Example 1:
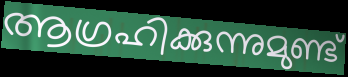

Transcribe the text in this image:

ആഗ്രഹിക്കുന്നുമുണ്ട്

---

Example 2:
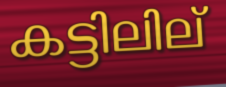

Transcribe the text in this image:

കട്ടിലില്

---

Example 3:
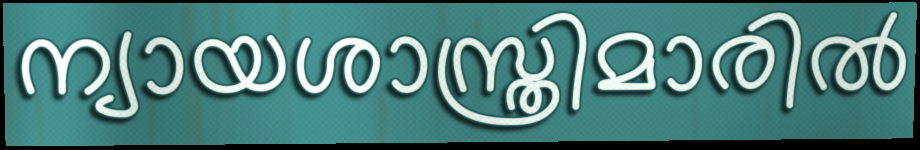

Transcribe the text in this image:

ന്യായശാസ്ത്രിമാരിൽ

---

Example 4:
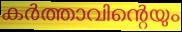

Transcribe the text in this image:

കർത്താവിന്റെയും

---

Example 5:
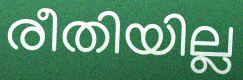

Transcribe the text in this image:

രീതിയില്ല